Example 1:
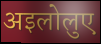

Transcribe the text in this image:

अइलोलुए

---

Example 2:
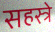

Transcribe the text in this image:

सहस्त्रे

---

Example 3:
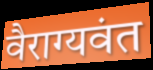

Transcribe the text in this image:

वैराग्यवंत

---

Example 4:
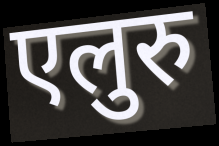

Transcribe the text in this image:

एलुरु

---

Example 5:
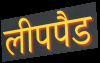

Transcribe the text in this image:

लीपपैड